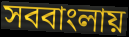
সববাংলায়